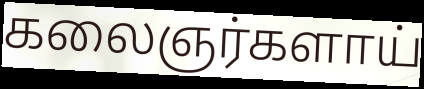
கலைஞர்களாய்